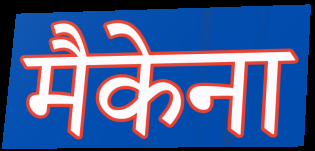
मैकेना